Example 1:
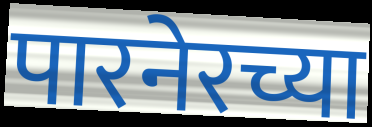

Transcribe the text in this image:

पारनेरच्या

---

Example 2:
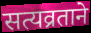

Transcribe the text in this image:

सत्यव्रताने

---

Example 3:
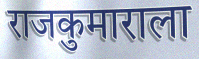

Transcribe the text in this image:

राजकुमाराला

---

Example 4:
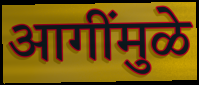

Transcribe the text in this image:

आगींमुळे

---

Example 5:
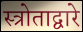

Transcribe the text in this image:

स्त्रोताद्वारे